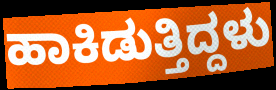
ಹಾಕಿಡುತ್ತಿದ್ದಳು